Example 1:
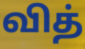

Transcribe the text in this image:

வித்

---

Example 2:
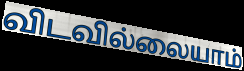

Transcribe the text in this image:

விடவில்லையாம்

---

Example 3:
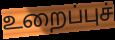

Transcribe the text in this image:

உறைப்புச்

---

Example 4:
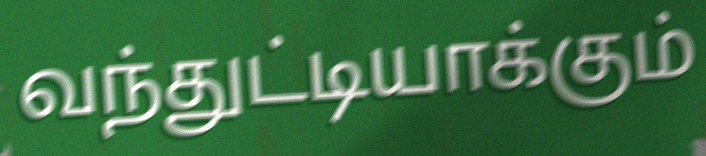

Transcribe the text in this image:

வந்துட்டியாக்கும்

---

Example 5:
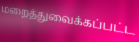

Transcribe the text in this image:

மறைத்துவைக்கப்பட்ட